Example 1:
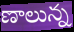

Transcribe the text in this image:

ణాలున్న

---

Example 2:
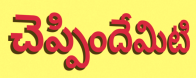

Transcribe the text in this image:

చెప్పిందేమిటి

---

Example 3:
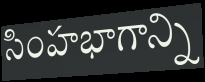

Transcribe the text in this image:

సింహభాగాన్ని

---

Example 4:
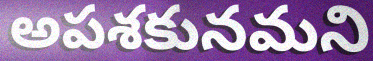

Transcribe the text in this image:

అపశకునమని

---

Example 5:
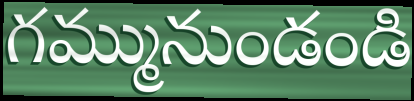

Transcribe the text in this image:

గమ్మునుండండి